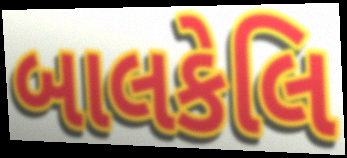
બાલકેલિ